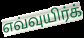
எவ்வுயிர்க்